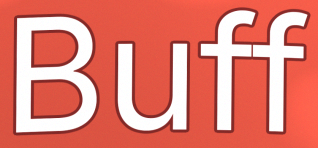
Buff